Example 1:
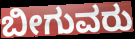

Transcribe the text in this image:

ಬೀಗುವರು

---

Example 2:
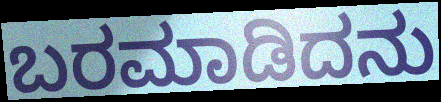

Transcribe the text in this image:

ಬರಮಾಡಿದನು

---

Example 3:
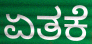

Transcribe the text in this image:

ಏತಕೆ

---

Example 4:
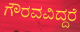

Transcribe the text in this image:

ಗೌರವವಿದ್ದರೆ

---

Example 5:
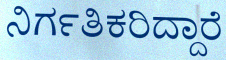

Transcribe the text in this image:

ನಿರ್ಗತಿಕರಿದ್ದಾರೆ